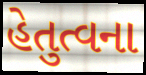
હેતુત્વના